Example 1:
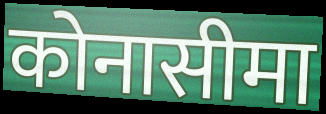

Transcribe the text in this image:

कोनासीमा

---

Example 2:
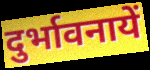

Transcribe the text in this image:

दुर्भावनायें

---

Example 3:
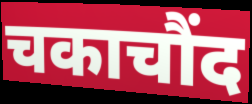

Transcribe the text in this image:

चकाचौंद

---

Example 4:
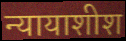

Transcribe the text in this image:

न्यायाशीश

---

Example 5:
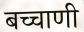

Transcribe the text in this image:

बच्चाणी